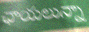
ఛాయలున్నా